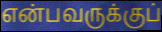
என்பவருக்குப்